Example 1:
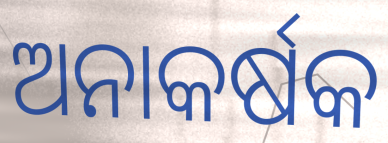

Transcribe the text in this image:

ଅନାକର୍ଷକ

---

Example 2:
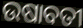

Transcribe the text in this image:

ଉଷାବତୀ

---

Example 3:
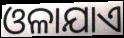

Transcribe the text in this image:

ଓଳାଯାଏ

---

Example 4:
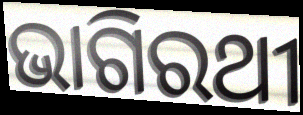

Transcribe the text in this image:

ଭାଗିରଥୀ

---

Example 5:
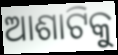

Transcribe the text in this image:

ଆଶାଟିକୁ